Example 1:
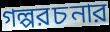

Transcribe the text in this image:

গল্পরচনার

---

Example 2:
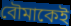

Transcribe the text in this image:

বৌমাকেই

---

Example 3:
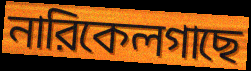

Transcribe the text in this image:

নারিকেলগাছে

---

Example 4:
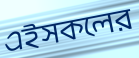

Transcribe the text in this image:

এইসকলের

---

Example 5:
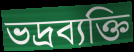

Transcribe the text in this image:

ভদ্রব্যক্তি